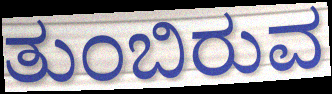
ತುಂಬಿರುವ